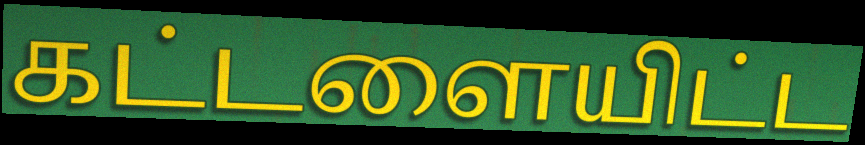
கட்டளையிட்ட